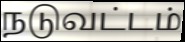
நடுவட்டம்